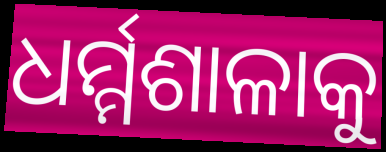
ଧର୍ମ୍ମଶାଳାକୁ